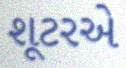
શૂટરએ